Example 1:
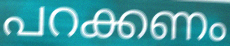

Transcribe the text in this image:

പറക്കണം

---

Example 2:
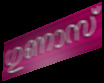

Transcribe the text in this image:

ഗുണാസ്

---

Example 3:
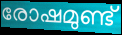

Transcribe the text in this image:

രോഷമുണ്ട്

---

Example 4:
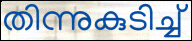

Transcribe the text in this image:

തിന്നുകുടിച്ച്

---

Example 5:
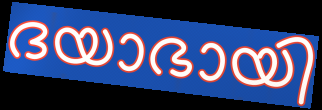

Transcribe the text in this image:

ദയാഭായി